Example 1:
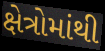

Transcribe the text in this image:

ક્ષેત્રોમાંથી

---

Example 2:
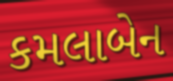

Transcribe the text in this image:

કમલાબેન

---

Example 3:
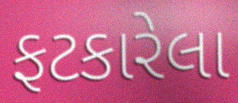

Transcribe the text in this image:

ફટકારેલા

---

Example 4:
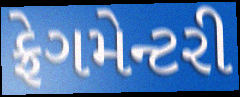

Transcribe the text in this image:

ફ્રેગમેન્ટરી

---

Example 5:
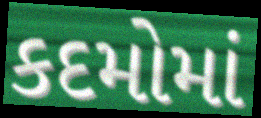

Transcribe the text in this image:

કદમોમાં